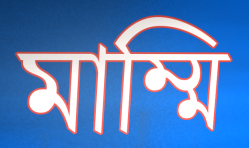
মাম্মি